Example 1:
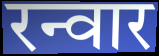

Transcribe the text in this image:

रन्वार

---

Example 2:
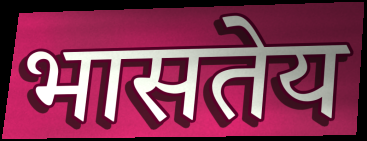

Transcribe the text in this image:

भासतेय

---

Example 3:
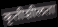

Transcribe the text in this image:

कृतीशीलता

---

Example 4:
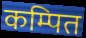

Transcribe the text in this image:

कम्पित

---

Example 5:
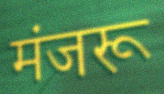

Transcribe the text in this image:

मंजरू